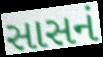
સાસનં